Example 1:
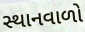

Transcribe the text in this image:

સ્થાનવાળો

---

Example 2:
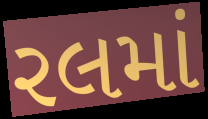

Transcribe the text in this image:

રલમાં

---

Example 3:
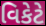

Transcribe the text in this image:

વિકેટે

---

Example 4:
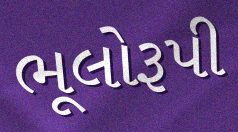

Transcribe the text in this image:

ભૂલોરૂપી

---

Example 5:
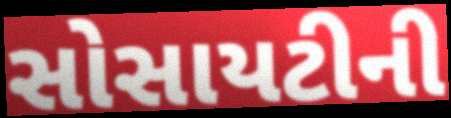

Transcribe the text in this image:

સોસાયટીની